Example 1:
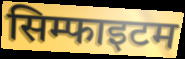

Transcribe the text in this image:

सिम्फाइटम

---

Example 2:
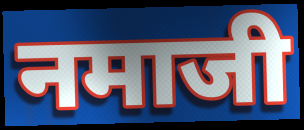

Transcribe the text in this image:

नमाजी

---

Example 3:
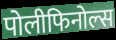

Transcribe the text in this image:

पोलीफिनोल्स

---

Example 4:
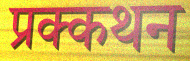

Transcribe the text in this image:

प्रक्कथन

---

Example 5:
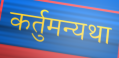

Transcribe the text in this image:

कर्तुमन्यथा